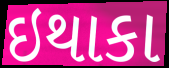
ઇથાકા